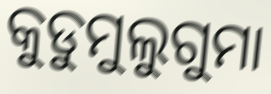
କୁଡୁମୁଲୁଗୁମା